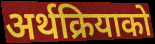
अर्थक्रियाको